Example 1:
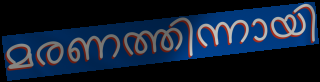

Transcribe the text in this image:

മരണത്തിന്നായി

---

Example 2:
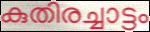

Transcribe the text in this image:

കുതിരച്ചാട്ടം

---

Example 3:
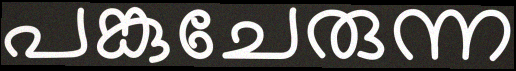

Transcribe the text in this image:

പങ്കുചേരുന്ന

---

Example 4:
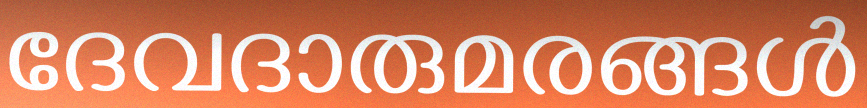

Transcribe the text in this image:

ദേവദാരുമരങ്ങൾ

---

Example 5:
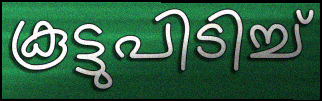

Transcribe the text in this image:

കൂട്ടുപിടിച്ച്